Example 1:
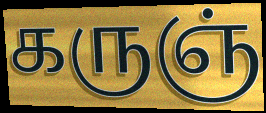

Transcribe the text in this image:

கருஞ்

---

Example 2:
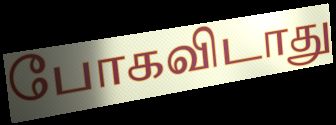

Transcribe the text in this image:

போகவிடாது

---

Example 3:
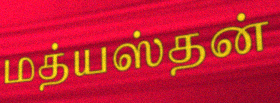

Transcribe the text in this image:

மத்யஸ்தன்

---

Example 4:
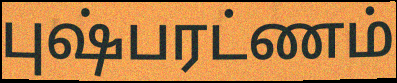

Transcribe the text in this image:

புஷ்பரட்ணம்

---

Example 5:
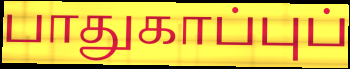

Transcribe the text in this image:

பாதுகாப்புப்